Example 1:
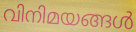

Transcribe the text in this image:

വിനിമയങ്ങൾ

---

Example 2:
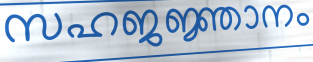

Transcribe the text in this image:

സഹജജ്ഞാനം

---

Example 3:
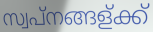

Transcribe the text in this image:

സ്വപ്നങ്ങള്ക്ക്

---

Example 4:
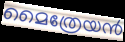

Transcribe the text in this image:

മൈത്രേയൻ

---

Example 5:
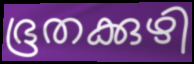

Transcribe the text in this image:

ഭൂതക്കുഴി